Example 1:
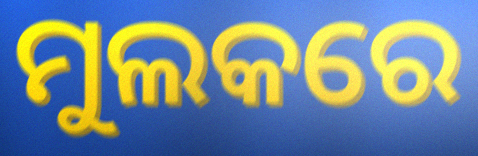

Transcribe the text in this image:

ମୁଲକରେ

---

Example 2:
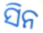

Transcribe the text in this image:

ସିନ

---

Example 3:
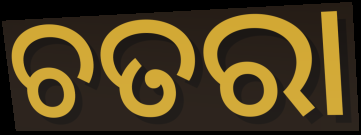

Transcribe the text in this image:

ଚତରା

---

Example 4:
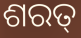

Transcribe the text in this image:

ଶରତ୍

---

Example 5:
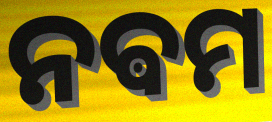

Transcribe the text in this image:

ନଵମ